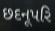
છદનૂપરિ